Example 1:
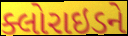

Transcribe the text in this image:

ક્લોરાઇડને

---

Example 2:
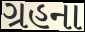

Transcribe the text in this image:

ગ્રહના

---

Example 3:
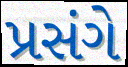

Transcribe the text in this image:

પ્રસંગે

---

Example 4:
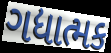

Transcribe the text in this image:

ગદ્યાત્મક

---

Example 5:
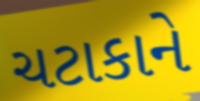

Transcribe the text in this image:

ચટાકાને